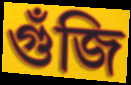
গুঁজি